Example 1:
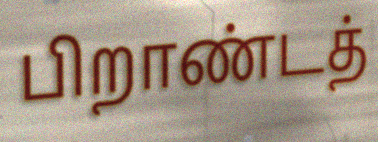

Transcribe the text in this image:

பிறாண்டத்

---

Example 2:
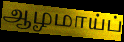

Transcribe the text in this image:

ஆழமாய்ப்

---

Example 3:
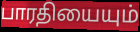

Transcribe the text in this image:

பாரதியையும்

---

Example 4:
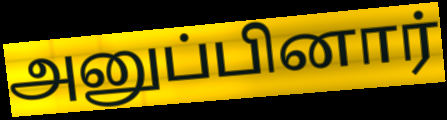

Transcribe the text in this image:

அனுப்பினார்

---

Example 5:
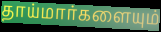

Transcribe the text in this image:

தாய்மார்களையும்